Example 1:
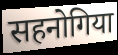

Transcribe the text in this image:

सहनोगिया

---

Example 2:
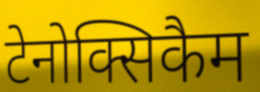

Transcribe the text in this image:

टेनोक्सिकैम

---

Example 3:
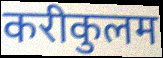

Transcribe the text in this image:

करीकुलम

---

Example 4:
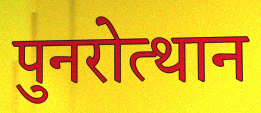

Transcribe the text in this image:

पुनरोत्थान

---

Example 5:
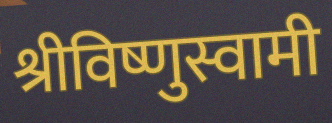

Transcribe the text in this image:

श्रीविष्णुस्वामी